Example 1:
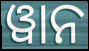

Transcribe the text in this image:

ୱାନ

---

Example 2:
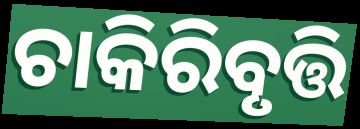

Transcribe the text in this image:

ଚାକିରିବୃତ୍ତି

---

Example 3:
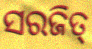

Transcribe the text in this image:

ସରଜିତ୍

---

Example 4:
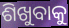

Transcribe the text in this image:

ଶିଖୁବାକୁ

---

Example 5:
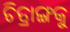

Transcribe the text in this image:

ଚିତ୍ରାଙ୍ଗକୁ